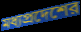
মধ্যপ্রদেশের